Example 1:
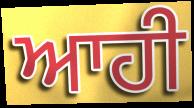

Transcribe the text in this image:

ਆਹੀ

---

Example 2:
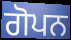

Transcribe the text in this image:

ਗੋਪਨ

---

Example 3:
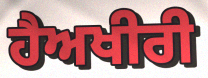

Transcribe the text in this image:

ਹੈਅਖੀਰੀ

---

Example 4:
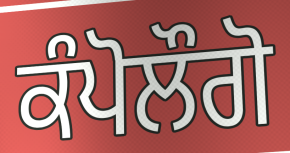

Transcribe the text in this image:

ਕੰਪੋਲੌਗੋ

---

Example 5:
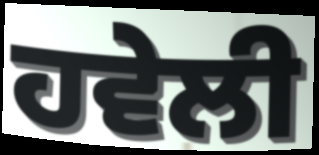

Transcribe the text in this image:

ਹਵੇਲੀ